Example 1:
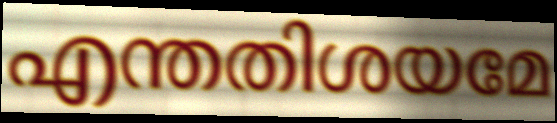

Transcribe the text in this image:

എന്തതിശയമേ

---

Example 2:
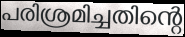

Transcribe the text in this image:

പരിശ്രമിച്ചതിന്റെ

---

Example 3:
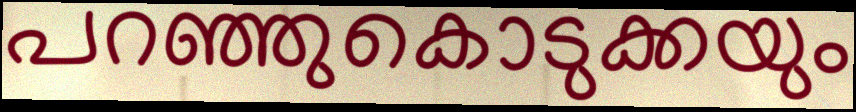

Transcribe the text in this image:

പറഞ്ഞുകൊടുക്കയും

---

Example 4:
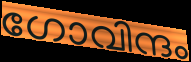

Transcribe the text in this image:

ഗോവിന്ദം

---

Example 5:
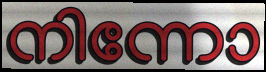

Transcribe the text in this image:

നിന്നോ